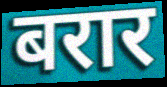
बरार